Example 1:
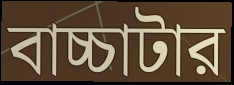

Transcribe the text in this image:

বাচ্চাটার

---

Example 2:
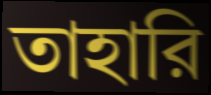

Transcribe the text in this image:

তাহারি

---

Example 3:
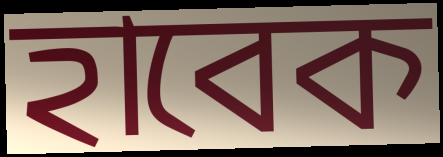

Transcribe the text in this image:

হাবেক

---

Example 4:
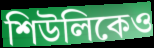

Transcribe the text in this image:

শিউলিকেও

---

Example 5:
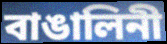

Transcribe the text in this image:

বাঙালিনী